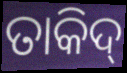
ତାକିଦ୍